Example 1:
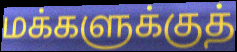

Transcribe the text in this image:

மக்களுக்குத்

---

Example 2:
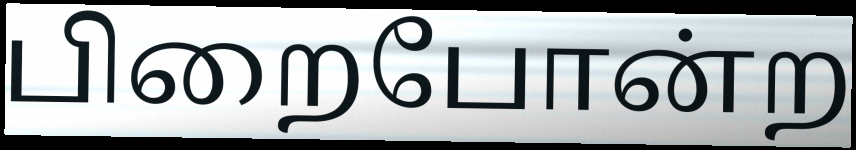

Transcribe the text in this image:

பிறைபோன்ற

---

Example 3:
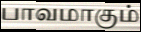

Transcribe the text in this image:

பாவமாகும்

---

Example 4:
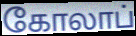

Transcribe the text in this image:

கோலாப்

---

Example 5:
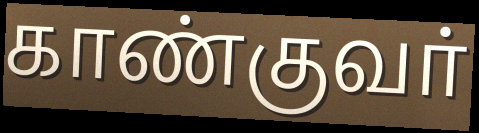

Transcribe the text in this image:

காண்குவர்